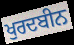
ਖੁਰਦਬੀਨ